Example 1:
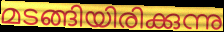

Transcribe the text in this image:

മടങ്ങിയിരിക്കുന്നു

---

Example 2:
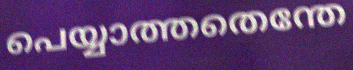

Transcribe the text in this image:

പെയ്യാത്തതെന്തേ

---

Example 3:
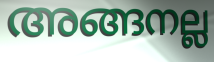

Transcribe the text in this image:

അങ്ങനല്ല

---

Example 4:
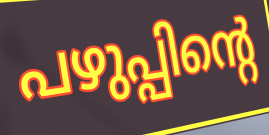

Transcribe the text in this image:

പഴുപ്പിന്റെ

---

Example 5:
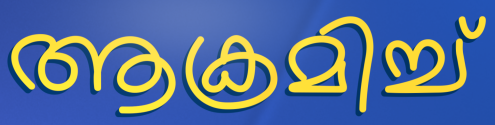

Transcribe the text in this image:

ആക്രമിച്ച്